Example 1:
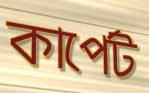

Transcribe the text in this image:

কাৰ্পেট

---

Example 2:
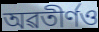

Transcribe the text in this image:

অৱতীৰ্ণও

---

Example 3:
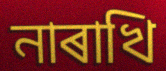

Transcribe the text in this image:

নাৰাখি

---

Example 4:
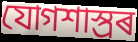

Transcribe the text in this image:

যোগশাস্ত্ৰৰ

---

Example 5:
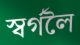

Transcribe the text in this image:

স্বৰ্গলৈ